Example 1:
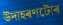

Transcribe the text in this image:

উদাহৰণটোৰ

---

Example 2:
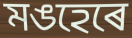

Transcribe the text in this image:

মঙহেৰে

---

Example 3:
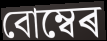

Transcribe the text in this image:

বোম্বেৰ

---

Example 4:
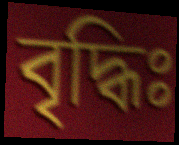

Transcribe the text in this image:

বৃদ্ধিঃ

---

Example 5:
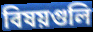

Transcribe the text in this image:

বিষয়গুলি